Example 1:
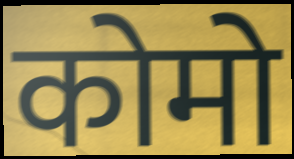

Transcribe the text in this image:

कोमो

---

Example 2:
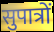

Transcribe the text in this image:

सुपात्रों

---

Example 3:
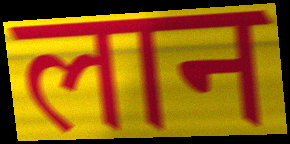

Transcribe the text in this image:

लान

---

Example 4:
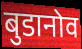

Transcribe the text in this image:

बुडानोव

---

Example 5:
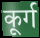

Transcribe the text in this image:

कूर्ग